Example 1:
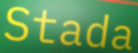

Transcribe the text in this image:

Stada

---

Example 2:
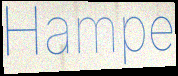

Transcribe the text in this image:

Hampe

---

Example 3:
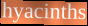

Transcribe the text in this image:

hyacinths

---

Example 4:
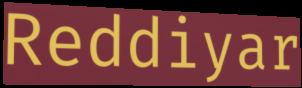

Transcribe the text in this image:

Reddiyar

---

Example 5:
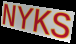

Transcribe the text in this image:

NYKS